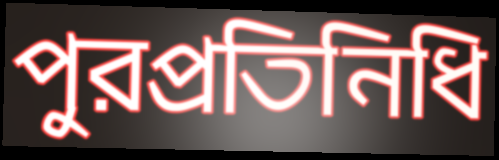
পুরপ্রতিনিধি